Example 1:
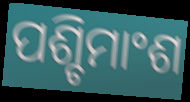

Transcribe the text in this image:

ପଶ୍ଚିମାଂଶ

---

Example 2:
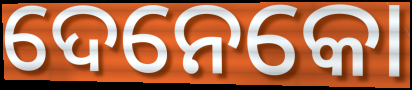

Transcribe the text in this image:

ଦେନେକୋ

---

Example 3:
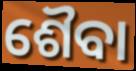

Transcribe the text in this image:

ଶୈବା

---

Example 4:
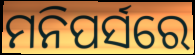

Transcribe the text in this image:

ମନିପର୍ସରେ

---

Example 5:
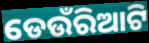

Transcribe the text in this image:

ଡେଉଁରିଆଟି